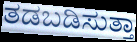
ತಡಬಡಿಸುತ್ತಾ